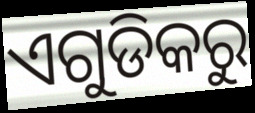
ଏଗୁଡିକରୁ